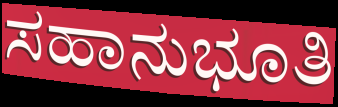
ಸಹಾನುಭೂತಿ